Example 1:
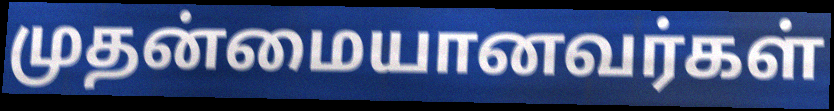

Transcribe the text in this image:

முதன்மையானவர்கள்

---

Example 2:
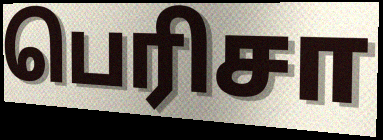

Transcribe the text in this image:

பெரிசா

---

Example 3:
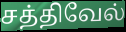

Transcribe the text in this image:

சத்திவேல்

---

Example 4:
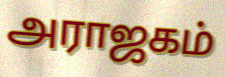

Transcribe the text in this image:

அராஜகம்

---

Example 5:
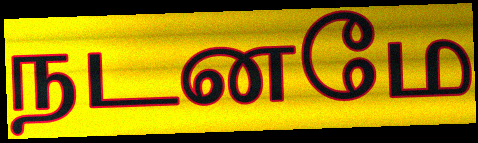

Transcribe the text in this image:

நடனமே